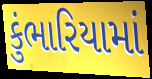
કુંભારિયામાં